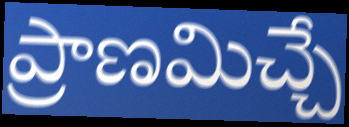
ప్రాణమిచ్చే